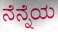
ನೆನ್ನೆಯ